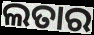
ଲତାର